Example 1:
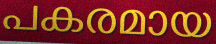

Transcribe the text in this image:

പകരമായ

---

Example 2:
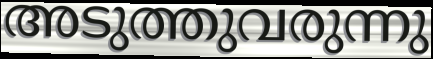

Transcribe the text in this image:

അടുത്തുവരുന്നു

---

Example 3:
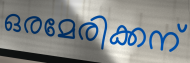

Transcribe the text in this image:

ഒരമേരിക്കന്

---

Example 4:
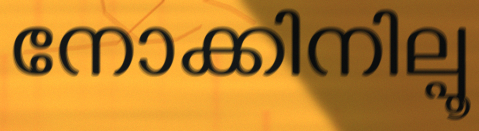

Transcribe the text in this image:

നോക്കിനില്പൂ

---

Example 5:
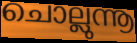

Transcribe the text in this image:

ചൊല്ലുന്നൂ